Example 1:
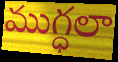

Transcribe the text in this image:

ముగ్ధలా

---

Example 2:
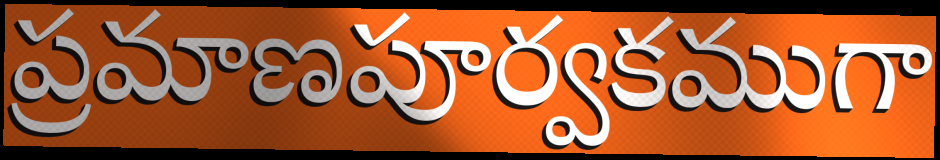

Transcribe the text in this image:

ప్రమాణపూర్వకముగా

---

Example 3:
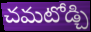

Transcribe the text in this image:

చమటోడ్చి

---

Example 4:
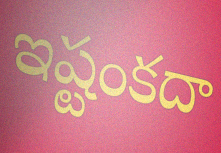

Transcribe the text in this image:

ఇష్టంకదా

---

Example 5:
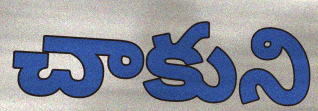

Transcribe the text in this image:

చాకుని